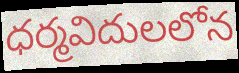
ధర్మవిదులలోన